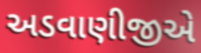
અડવાણીજીએ